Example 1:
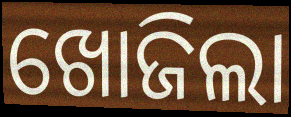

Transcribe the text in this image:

ଖୋଜିଲା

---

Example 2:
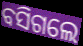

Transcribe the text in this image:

ବସିଗଲେ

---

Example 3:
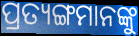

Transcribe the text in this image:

ପ୍ରତ୍ୟଙ୍ଗମାନଙ୍କୁ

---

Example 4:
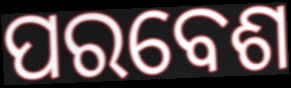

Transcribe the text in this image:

ପରବେଶ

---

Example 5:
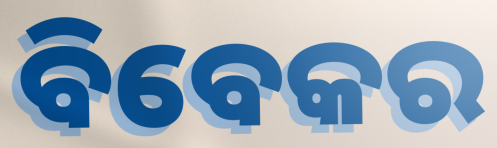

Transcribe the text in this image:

ବିବେକର